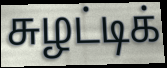
சுழட்டிக்